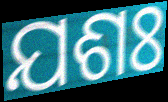
ଯଶଃ